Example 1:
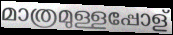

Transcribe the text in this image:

മാത്രമുള്ളപ്പോള്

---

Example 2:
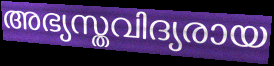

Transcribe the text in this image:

അഭ്യസ്തവിദ്യരായ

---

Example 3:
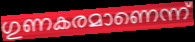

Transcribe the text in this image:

ഗുണകരമാണെന്ന്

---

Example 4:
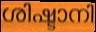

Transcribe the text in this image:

ശിഷ്ടാനി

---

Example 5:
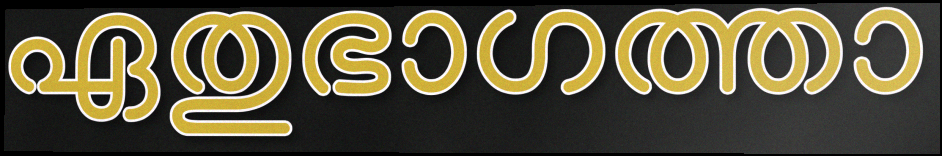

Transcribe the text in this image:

ഏതുഭാഗത്താ